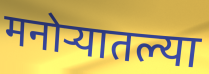
मनोर्‍यातल्या